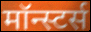
मॉन्स्टर्स